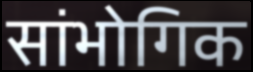
सांभोगिक